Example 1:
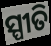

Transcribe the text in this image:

ସ୍ପୀତି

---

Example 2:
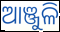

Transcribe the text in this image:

ଆଞ୍ଜୁଳି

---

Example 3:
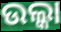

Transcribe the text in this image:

ଉଲ୍କା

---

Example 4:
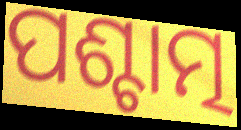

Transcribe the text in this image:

ପଶ୍ଚାତ୍ମ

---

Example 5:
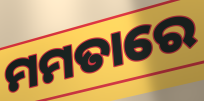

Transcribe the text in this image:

ମମତାରେ